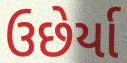
ઉછેર્યા